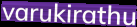
varukirathu